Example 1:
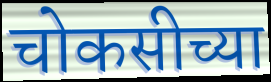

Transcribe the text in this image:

चोकसीच्या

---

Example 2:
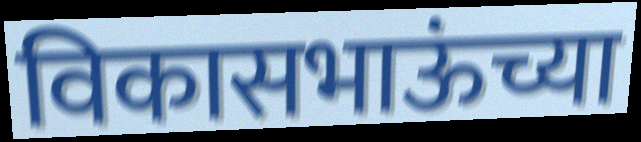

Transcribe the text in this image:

विकासभाऊंच्या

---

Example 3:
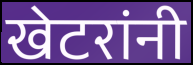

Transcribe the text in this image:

खेटरांनी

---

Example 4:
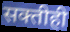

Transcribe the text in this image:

सक्तीही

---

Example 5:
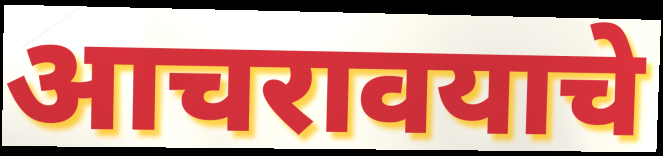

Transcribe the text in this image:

आचरावयाचे